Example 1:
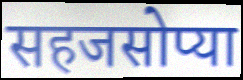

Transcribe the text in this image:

सहजसोप्या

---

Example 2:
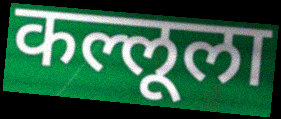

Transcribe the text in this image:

कल्लूला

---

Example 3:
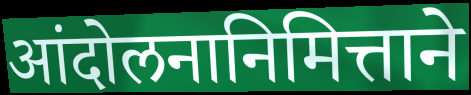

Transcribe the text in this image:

आंदोलनानिमित्ताने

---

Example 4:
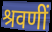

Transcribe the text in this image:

श्रवणीं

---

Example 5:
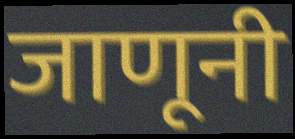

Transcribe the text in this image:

जाणूनी